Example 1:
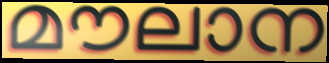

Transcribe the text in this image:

മൗലാന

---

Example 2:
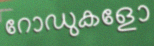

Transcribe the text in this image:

റോഡുകളോ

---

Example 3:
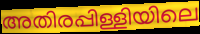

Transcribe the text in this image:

അതിരപ്പിള്ളിയിലെ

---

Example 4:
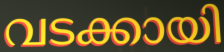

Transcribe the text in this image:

വടക്കായി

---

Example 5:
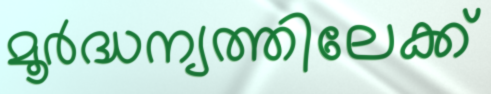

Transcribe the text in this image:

മൂർദ്ധന്യത്തിലേക്ക്